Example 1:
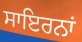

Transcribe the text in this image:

ਸਾਇਰਨਾਂ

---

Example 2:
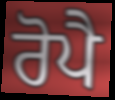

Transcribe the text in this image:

ਰੋਪੈ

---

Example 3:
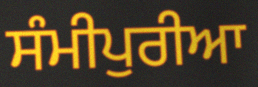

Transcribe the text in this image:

ਸੰਮੀਪੁਰੀਆ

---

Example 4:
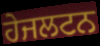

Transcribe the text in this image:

ਹੇਜਲਟਨ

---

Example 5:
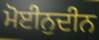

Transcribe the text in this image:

ਮੋਈਨੁਦੀਨ